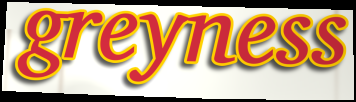
greyness